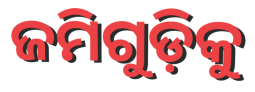
ଜମିଗୁଡ଼ିକୁ